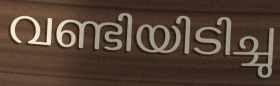
വണ്ടിയിടിച്ചു